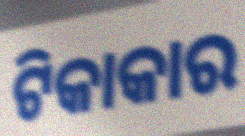
ଟିକାକାର